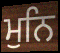
ਮੁਨਿ